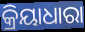
କ୍ରିୟାଧାରା